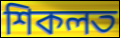
শিকলত